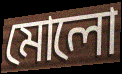
মোলো